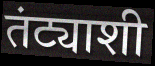
तंट्याशी